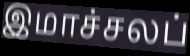
இமாச்சலப்